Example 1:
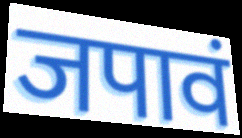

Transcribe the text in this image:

जपावं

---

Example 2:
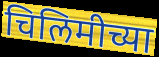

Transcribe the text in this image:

चिलिमीच्या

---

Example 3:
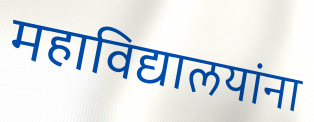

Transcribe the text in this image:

महाविद्यालयांना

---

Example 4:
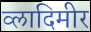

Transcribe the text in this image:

व्लादिमीर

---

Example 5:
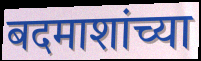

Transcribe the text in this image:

बदमाशांच्या